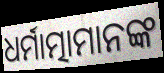
ଧର୍ମାତ୍ମାମାନଙ୍କ